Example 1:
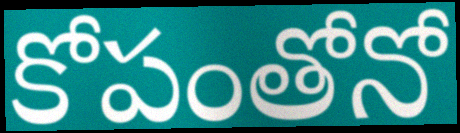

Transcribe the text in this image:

కోపంతోనో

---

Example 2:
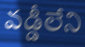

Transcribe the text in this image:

వడ్డీలేని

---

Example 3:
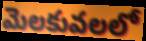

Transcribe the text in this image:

మెలకువలలో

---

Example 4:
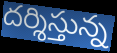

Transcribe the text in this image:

దర్శిస్తున్న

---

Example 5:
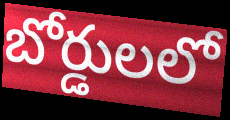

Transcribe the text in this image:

బోర్డులలో